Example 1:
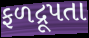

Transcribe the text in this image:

ફળદ્રૂપતા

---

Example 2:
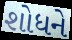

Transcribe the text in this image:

શોધને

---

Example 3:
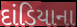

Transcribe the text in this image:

દાંડિયાના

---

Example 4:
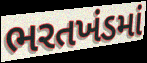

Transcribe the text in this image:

ભરતખંડમાં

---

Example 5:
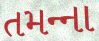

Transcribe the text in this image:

તમન્‍ના